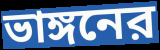
ভাঙ্গনের